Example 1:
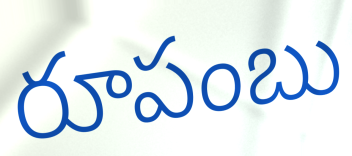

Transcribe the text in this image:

రూపంబు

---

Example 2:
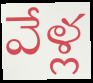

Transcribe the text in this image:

వేళ్ల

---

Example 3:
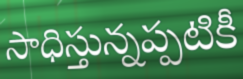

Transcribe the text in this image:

సాధిస్తున్నప్పటికీ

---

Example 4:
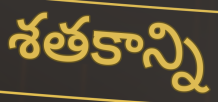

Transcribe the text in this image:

శతకాన్ని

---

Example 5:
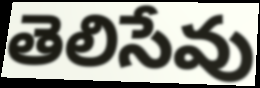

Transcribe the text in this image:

తెలిసేవు